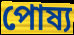
পোষ্য